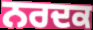
ਨਰਦਕ